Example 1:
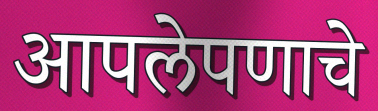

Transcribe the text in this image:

आपलेपणाचे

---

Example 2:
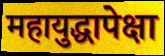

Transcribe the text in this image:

महायुद्धापेक्षा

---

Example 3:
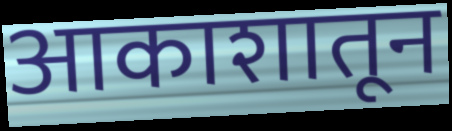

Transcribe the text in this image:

आकाशातून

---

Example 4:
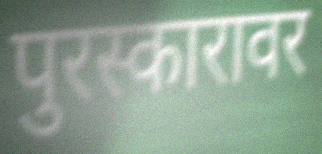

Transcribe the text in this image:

पुरस्कारावर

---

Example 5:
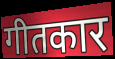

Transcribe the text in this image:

गीतकार